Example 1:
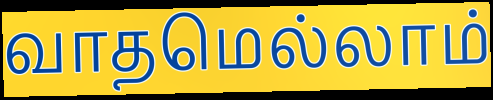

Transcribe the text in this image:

வாதமெல்லாம்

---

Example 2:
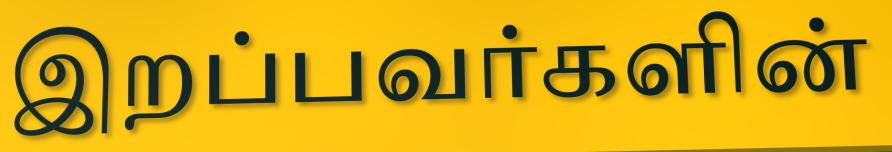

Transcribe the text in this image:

இறப்பவர்களின்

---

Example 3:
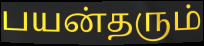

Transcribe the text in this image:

பயன்தரும்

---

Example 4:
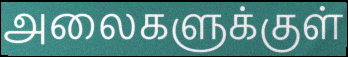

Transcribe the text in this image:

அலைகளுக்குள்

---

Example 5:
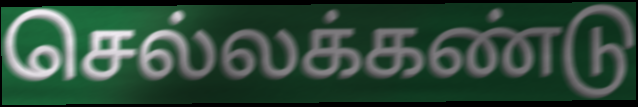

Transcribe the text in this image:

செல்லக்கண்டு